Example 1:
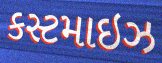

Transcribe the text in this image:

કસ્ટમાઇઝ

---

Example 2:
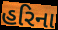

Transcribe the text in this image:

હરિના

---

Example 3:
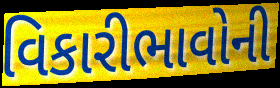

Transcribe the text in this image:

વિકારીભાવોની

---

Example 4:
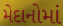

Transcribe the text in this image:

મેદાનોમાં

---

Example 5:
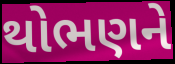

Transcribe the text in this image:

થોભણને